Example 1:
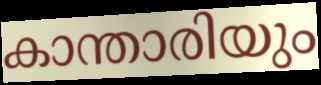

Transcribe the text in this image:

കാന്താരിയും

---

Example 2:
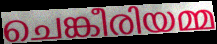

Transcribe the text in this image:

ചെങ്കീരിയമ്മ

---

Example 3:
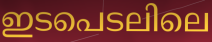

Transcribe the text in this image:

ഇടപെടലിലെ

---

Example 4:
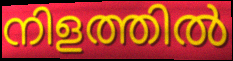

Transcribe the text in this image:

നിളത്തിൽ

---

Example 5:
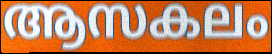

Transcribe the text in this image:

ആസകലം